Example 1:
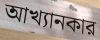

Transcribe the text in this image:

আখ্যানকার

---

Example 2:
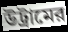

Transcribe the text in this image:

উট্রামের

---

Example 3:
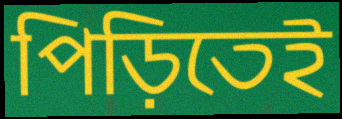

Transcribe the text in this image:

পিড়িতেই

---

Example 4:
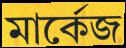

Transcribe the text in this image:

মার্কেজ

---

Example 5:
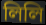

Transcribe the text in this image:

লিলি